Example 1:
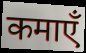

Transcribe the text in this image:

कमाएँ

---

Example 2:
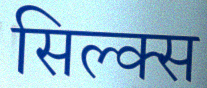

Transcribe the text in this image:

सिल्क्स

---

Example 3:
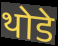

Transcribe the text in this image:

थोडे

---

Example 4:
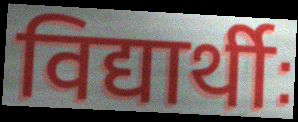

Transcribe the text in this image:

विद्यार्थीः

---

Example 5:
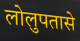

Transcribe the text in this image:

लोलुपतासे